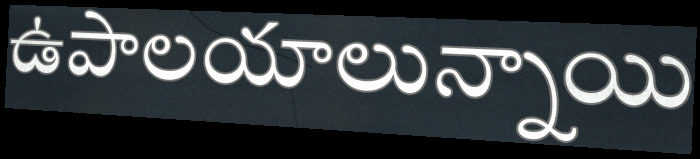
ఉపాలయాలున్నాయి